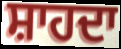
ਸ਼ਾਹਦਾ